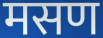
मसण